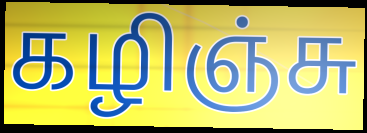
கழிஞ்சு